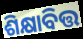
ଶିକ୍ଷାବିତ୍ତ